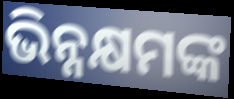
ଭିନ୍ନକ୍ଷମଙ୍କ